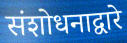
संशोधनाद्वारे